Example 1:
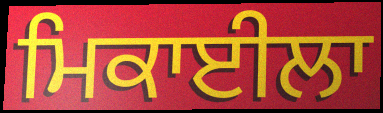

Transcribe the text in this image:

ਮਿਕਾਈਲਾ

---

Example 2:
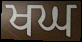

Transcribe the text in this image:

ਖਘ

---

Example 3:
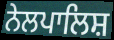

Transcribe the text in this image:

ਨੇਲਪਾਲਿਸ਼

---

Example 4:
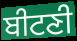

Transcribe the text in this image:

ਬੀਟਣੀ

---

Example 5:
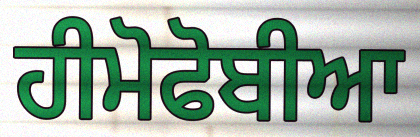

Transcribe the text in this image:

ਹੀਮੋਫੋਬੀਆ